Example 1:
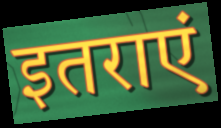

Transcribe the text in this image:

इतराएं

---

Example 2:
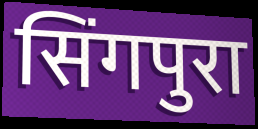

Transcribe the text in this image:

सिंगपुरा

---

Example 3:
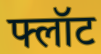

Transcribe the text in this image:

फ्लॉट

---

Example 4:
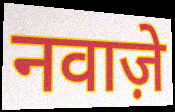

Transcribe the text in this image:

नवाज़े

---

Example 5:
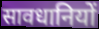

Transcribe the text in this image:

सावधानियों